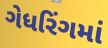
ગેધરિંગમાં